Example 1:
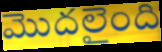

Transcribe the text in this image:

మొదలైంది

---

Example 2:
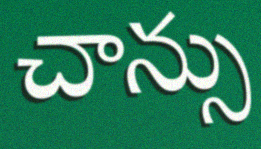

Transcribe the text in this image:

చాన్సు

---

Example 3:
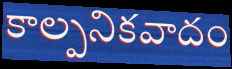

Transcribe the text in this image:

కాల్పనికవాదం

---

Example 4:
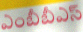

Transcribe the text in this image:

ఎంబీబీఎస్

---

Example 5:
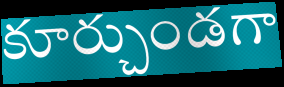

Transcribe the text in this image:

కూర్చుండగా